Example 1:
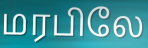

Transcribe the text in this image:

மரபிலே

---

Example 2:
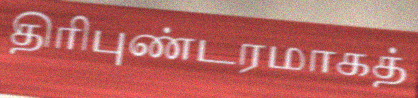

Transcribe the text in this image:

திரிபுண்டரமாகத்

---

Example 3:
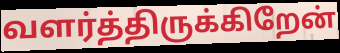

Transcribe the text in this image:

வளர்த்திருக்கிறேன்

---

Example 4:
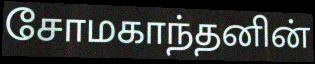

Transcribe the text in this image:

சோமகாந்தனின்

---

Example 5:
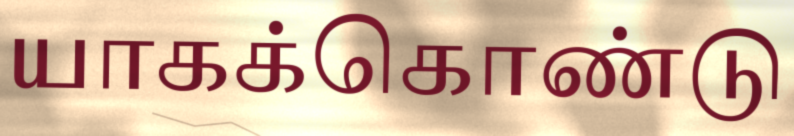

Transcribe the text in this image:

யாகக்கொண்டு